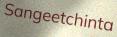
Sangeetchinta